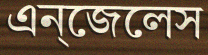
এন্জেলেস